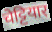
चेट्टियार